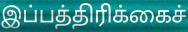
இப்பத்திரிக்கைச்